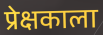
प्रेक्षकाला